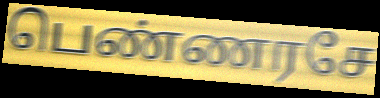
பெண்ணரசே